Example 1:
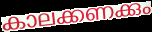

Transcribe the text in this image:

കാലക്കണക്കും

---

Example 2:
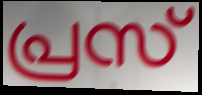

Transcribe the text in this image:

പ്രസ്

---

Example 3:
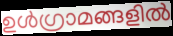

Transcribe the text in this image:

ഉൾഗ്രാമങ്ങളിൽ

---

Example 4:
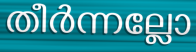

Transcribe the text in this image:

തീർന്നല്ലോ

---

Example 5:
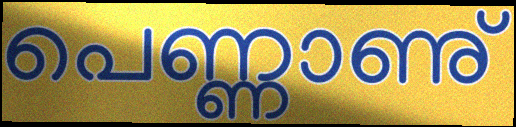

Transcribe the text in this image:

പെണ്ണാണു്